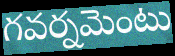
గవర్నమెంటు